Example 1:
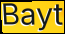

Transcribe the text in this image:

Bayt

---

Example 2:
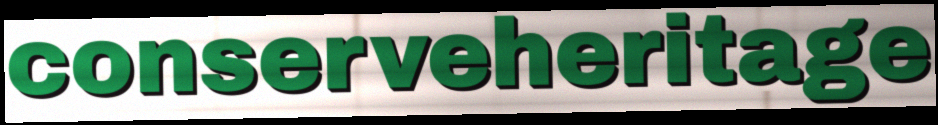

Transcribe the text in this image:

conserveheritage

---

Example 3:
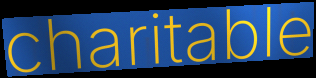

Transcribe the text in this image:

charitable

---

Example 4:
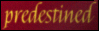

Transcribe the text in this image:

predestined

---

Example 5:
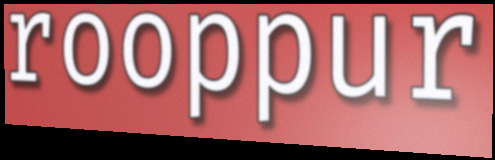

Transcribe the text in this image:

rooppur